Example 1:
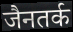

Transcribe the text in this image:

जैनतर्क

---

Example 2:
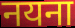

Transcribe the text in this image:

नयना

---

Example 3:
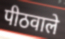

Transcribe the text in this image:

पीठवाले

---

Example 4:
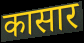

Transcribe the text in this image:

कासार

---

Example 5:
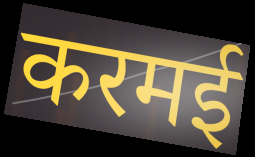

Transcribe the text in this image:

करमई